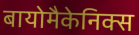
बायोमैकेनिक्स